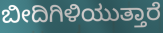
ಬೀದಿಗಿಳಿಯುತ್ತಾರೆ